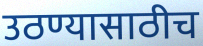
उठण्यासाठीच